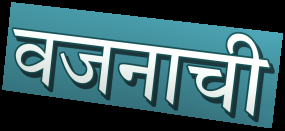
वजनाची